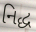
નિદ્ધ